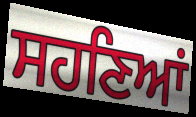
ਸਹਣਿਆਂ